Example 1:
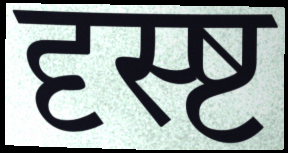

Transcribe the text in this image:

दृस्ष्ट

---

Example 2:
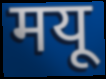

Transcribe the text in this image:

मयू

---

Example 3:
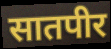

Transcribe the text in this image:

सातपीर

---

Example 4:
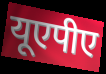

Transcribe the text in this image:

यूएपीए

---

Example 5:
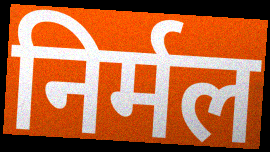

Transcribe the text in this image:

निर्मल